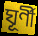
ঘূৰ্ণী